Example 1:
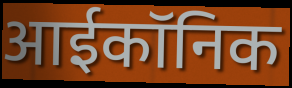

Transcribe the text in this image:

आईकॉनिक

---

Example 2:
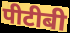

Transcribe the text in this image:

पीटीबी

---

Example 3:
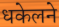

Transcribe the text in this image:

धकेलने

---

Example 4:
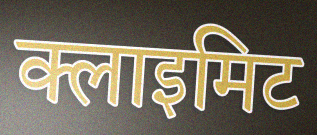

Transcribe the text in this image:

क्लाइमिट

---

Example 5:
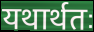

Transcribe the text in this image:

यथार्थतः